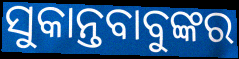
ସୁକାନ୍ତବାବୁଙ୍କର